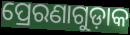
ପ୍ରେରଣାଗୁଡ଼ାକ